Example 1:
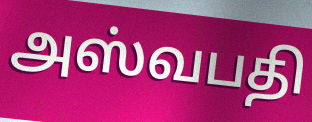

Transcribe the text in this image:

அஸ்வபதி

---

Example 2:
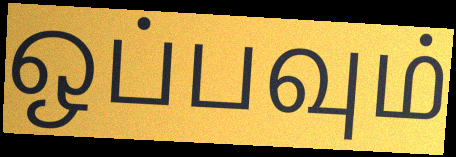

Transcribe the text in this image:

ஒப்பவும்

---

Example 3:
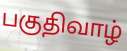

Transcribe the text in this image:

பகுதிவாழ்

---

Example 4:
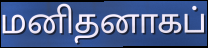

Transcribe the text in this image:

மனிதனாகப்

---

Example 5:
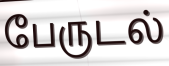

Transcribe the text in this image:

பேருடல்